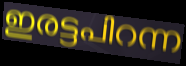
ഇരട്ടപിറന്ന